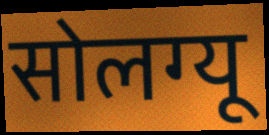
सोलग्यू